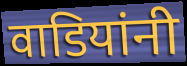
वाडियांनी